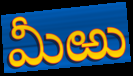
మీఱు